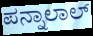
ಪನ್ನಾಲಾಲ್